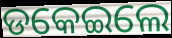
ଡକେଇଲେ